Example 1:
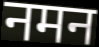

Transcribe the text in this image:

नमन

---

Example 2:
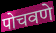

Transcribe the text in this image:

पोचवणे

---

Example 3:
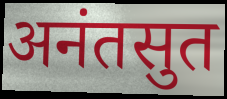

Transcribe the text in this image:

अनंतसुत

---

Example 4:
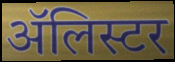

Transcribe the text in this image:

ॲलिस्टर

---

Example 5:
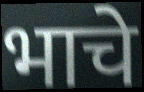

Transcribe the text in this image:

भाचे